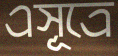
এসূত্রে